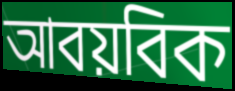
আবয়বিক